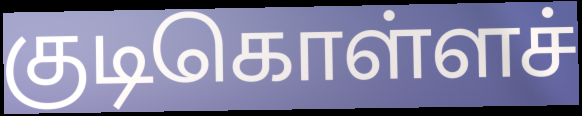
குடிகொள்ளச்